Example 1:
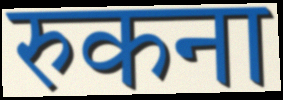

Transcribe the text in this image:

रुकना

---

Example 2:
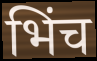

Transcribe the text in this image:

भिंच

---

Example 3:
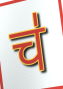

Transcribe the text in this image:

च॑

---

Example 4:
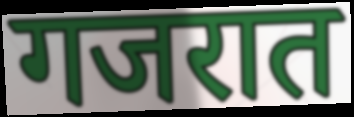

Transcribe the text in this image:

गजरात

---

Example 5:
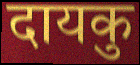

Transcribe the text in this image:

दायकु